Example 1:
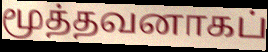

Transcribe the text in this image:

மூத்தவனாகப்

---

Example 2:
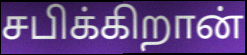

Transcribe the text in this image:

சபிக்கிறான்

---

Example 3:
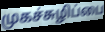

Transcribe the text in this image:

முகச்சுழிப்பை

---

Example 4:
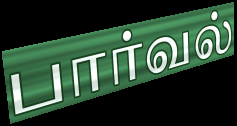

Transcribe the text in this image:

பார்வல்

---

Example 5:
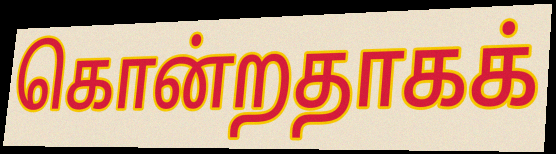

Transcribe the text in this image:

கொன்றதாகக்